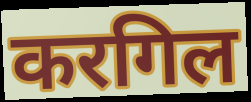
करगिल